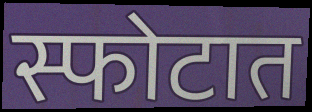
स्फोटात